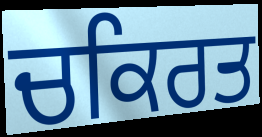
ਚਕਿਰਤ